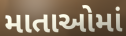
માતાઓમાં